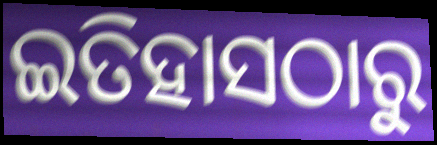
ଇତିହାସଠାରୁ